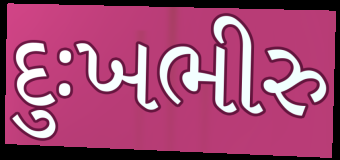
દુઃખભીરુ